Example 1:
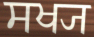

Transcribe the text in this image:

ਸਖ੍ਯ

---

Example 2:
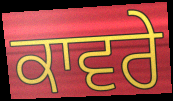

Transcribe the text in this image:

ਕਾਵਰੇ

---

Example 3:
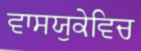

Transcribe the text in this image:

ਵਾਸਯੁਕੇਵਿਚ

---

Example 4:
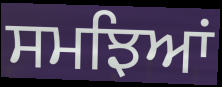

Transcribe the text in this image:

ਸਮਝਿਆਂ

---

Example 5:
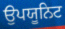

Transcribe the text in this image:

ਉਪਯੂਨਿਟ